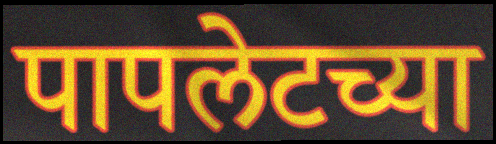
पापलेटच्या